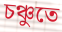
চঞ্চুতে